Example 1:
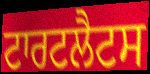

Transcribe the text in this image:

ਟਾਰਟਲੈਟਸ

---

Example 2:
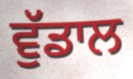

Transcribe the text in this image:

ਵੁੱਡਾਲ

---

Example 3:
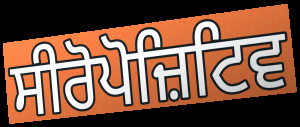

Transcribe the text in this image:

ਸੀਰੋਪੋਜ਼ਿਟਿਵ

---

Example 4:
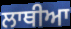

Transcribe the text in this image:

ਲਾਥੀਆ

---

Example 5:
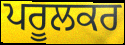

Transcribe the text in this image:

ਪਰੂਲਕਰ